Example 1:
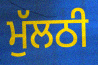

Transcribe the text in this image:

ਮੁੱਲਠੀ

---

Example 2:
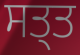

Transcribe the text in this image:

ਸਤ੍ਤ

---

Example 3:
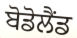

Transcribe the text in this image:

ਬੋਡੋਲੈਂਡ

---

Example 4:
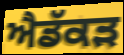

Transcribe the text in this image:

ਐਡੱਕੜ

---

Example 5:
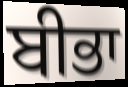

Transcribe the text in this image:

ਬੀਭਾ